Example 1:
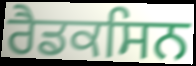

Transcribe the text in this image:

ਰੈਡਕਸਿਨ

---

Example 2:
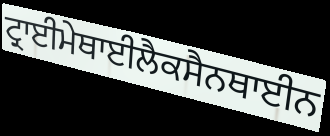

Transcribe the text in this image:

ਟ੍ਰਾਈਮੇਥਾਈਲੈਕਸੈਨਥਾਈਨ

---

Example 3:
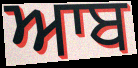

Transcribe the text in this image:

ਆਬ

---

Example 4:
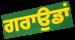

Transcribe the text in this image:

ਗਰਾਉਡਾਂ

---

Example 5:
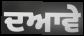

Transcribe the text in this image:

ਦਆਵੇ